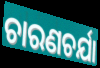
ଚାରଣଚର୍ଯା